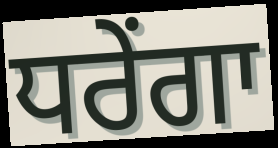
ਧਰੇਂਗਾ